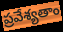
ప్రవేశ్యతాం